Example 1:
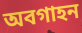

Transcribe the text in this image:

অবগাহন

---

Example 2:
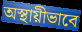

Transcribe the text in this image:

অস্থায়ীভাবে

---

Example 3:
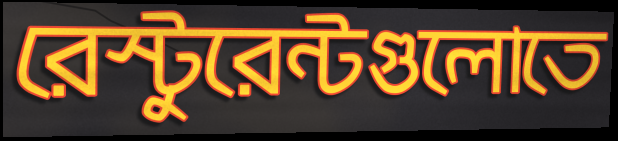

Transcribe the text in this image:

রেস্টুরেন্টগুলোতে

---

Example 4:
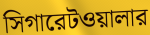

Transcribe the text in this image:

সিগারেটওয়ালার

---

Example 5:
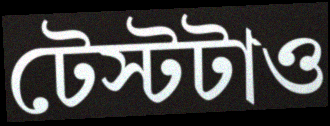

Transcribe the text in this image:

টেস্টটাও